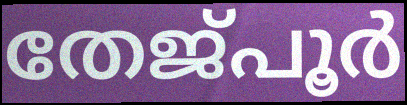
തേജ്പൂർ